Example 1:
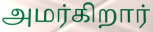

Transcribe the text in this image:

அமர்கிறார்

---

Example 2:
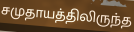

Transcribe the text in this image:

சமுதாயத்திலிருந்த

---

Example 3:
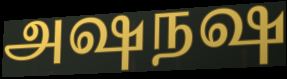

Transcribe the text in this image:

அஷநஷ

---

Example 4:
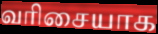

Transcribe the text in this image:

வரிசையாக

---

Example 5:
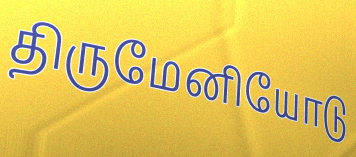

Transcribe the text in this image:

திருமேனியோடு